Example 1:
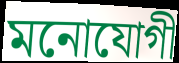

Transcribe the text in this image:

মনোযোগী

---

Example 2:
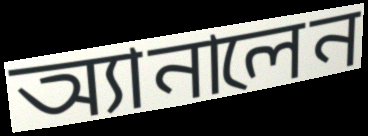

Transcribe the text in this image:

অ্যানালেন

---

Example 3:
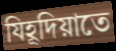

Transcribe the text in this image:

যিহূদিয়াতে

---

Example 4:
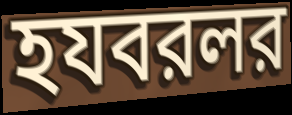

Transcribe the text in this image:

হযবরলর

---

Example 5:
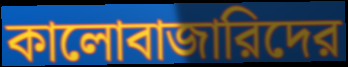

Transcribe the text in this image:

কালোবাজারিদের